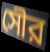
সৌর